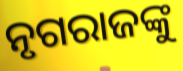
ନୃଗରାଜଙ୍କୁ